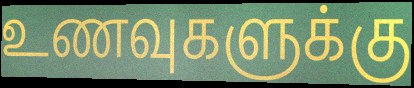
உணவுகளுக்கு